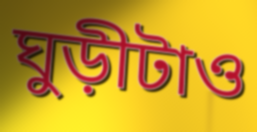
ঘুড়ীটাও